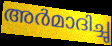
അർമാദിച്ചു